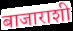
बाजाराशी